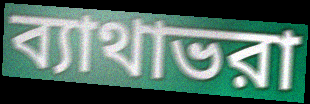
ব্যাথাভরা